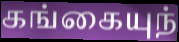
கங்கையுந்